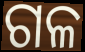
ଗଳ